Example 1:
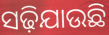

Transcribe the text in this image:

ସଢ଼ିଯାଉଛି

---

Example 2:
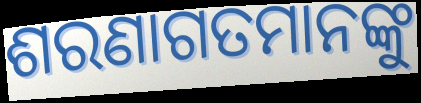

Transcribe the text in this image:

ଶରଣାଗତମାନଙ୍କୁ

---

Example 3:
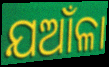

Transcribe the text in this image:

ଯଆଁଳା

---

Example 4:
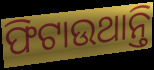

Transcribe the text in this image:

ଫିଟାଉଥାନ୍ତି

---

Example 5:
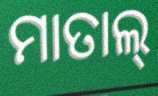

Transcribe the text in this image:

ମାତାଲ୍